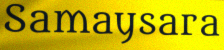
Samaysara